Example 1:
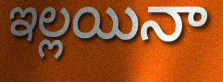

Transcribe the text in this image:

ఇల్లయినా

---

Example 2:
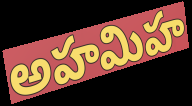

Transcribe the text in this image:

అహమిహ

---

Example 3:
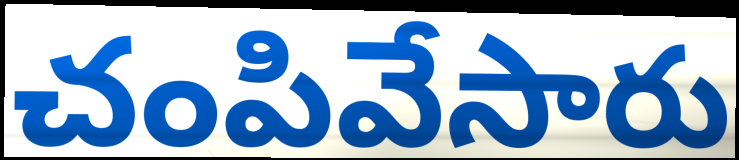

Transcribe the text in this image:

చంపివేసారు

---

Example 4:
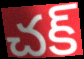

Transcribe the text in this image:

చక్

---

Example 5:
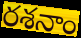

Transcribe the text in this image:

రశనాం